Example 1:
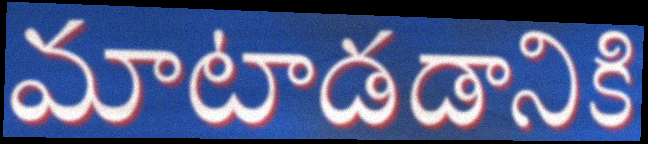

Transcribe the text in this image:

మాటాడడానికి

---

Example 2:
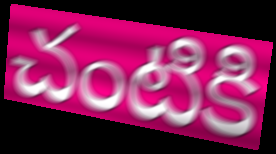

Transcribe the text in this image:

చంటికి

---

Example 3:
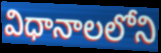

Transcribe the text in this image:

విధానాలలోని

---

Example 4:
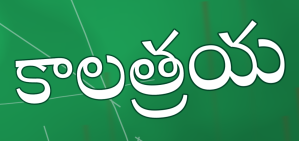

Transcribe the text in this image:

కాలత్రయ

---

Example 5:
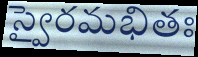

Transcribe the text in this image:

స్వైరమభితః